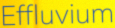
Effluvium